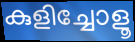
കുളിച്ചോളൂ